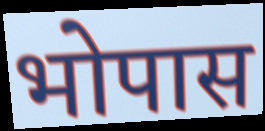
भोपास